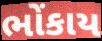
ભોંકાય